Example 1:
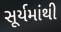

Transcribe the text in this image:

સૂર્યમાંથી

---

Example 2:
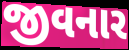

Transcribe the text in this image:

જીવનાર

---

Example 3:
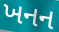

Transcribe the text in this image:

ખનન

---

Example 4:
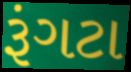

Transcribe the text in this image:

રૂંગટા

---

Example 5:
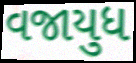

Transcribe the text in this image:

વજાયુધ